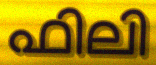
ഫിലി